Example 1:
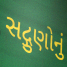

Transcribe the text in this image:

સદ્ગુણોનું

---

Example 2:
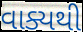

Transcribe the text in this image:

વાક્યથી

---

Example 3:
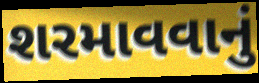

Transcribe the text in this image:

શરમાવવાનું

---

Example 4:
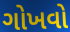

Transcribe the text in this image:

ગોખવો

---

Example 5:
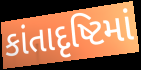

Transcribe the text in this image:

કાંતાદૃષ્ટિમાં